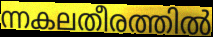
ന്നകലതീരത്തിൽ